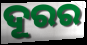
ଦୂରର